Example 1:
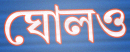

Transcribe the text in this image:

ঘোলও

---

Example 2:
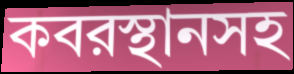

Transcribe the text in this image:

কবরস্থানসহ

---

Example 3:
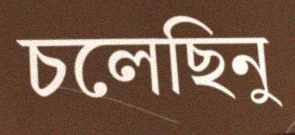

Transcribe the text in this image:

চলেছিনু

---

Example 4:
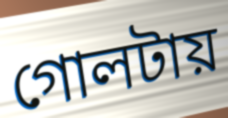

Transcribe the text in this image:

গোলটায়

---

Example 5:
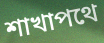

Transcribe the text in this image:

শাখাপথে